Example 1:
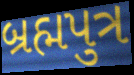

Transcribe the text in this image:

બ્રહ્મપુત્ર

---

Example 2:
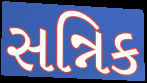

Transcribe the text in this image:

સન્નિક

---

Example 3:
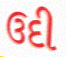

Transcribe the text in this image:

ઉદી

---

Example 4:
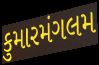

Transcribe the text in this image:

કુમારમંગલમ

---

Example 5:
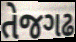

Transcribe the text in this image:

તેજગઢ